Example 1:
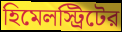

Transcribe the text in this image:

হিমেলস্ট্রিটের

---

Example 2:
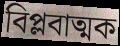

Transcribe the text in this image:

বিপ্লবাত্মক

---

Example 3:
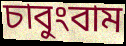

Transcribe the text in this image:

চাবুংবাম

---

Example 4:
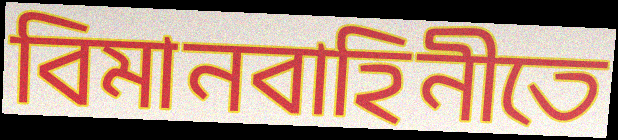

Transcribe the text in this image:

বিমানবাহিনীতে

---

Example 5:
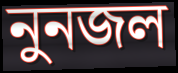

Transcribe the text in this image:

নুনজল